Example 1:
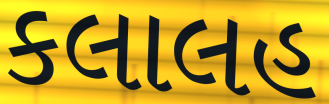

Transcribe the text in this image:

કલાલહ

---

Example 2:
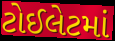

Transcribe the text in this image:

ટોઈલેટમાં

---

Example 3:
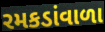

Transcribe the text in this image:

રમકડાંવાળા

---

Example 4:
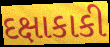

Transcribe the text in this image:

દક્ષાકાકી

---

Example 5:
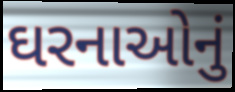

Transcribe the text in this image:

ઘરનાઓનું